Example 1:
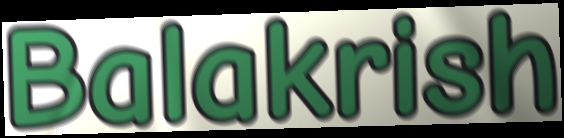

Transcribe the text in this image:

Balakrish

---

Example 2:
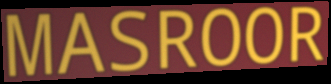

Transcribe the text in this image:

MASROOR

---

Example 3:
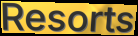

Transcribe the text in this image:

Resorts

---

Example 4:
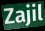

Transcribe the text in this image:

Zajil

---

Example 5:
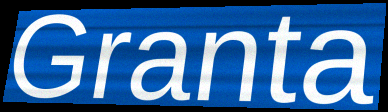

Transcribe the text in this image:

Granta